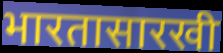
भारतासारखी